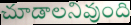
చూడాలనివుంది